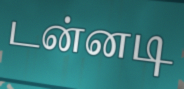
டன்னடி